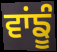
ਵਾਂਙੂੰ